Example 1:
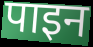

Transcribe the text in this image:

पाइन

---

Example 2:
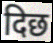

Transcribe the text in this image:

दिछ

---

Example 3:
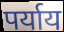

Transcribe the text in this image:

पर्याय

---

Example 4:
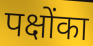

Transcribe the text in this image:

पक्षोंका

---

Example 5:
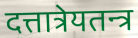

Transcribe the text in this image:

दत्तात्रेयतन्त्र